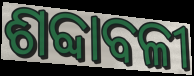
ଶବ୍ଦାବଳୀ